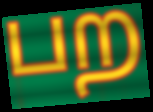
பற